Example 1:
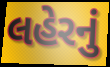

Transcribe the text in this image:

લહેરનું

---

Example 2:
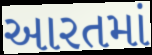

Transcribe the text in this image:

આરતમાં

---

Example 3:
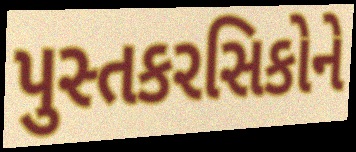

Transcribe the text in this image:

પુસ્તકરસિકોને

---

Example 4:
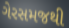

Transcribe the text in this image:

ગેરસમજથી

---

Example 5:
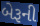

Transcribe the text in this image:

બેરૂની